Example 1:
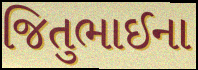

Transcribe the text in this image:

જિતુભાઈના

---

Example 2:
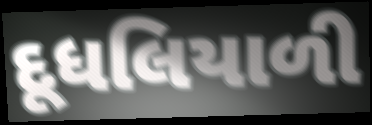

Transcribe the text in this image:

દૂધલિયાળી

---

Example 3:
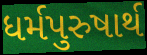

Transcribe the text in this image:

ધર્મપુરુષાર્થ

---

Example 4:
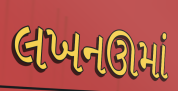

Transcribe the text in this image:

લખનઊમાં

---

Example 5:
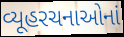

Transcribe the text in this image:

વ્યૂહરચનાઓનાં